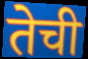
तेची